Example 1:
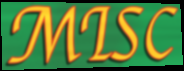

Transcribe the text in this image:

MISC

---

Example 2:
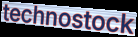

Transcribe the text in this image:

technostock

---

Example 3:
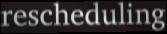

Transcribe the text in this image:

rescheduling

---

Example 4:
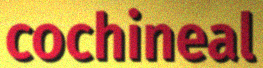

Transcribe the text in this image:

cochineal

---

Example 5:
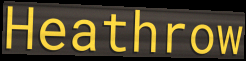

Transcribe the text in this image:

Heathrow